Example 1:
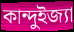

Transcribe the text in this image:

কান্দুইজ্যা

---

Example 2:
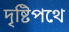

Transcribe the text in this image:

দৃষ্টিপথে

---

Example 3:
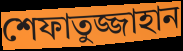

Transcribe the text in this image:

শেফাতুজ্জাহান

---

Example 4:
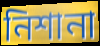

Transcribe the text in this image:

নিশানা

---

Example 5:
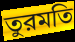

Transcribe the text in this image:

তুরমতি